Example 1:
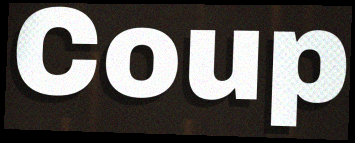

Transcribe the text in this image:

Coup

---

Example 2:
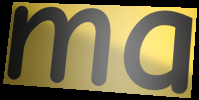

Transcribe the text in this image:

ma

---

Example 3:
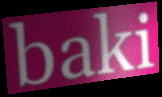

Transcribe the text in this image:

baki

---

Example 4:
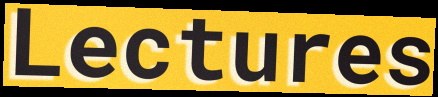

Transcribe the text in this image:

Lectures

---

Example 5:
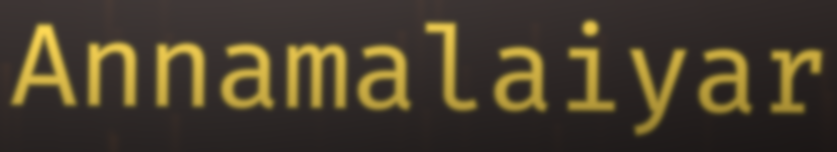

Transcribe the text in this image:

Annamalaiyar